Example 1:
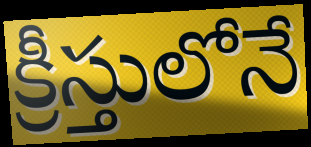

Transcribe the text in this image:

క్రీస్తులోనే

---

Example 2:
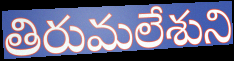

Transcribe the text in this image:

తిరుమలేశుని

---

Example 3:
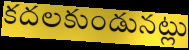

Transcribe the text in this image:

కదలకుండునట్లు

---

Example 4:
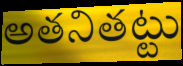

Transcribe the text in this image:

అతనితట్టు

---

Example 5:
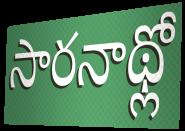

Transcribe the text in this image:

సారనాథ్లో